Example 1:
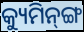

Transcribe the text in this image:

କ୍ୟୁମିନ୍‌ଙ୍ଗ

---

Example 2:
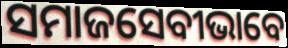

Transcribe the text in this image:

ସମାଜସେବୀଭାବେ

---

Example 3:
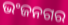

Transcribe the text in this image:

ଭଂଜନଗର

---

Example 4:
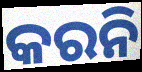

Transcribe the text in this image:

କରନି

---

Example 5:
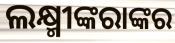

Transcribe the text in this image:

ଲକ୍ଷ୍ମୀଙ୍କରାଙ୍କର